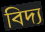
বিদ্য